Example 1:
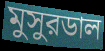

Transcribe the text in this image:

মুসুরডাল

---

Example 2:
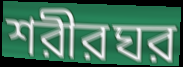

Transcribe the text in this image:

শরীরঘর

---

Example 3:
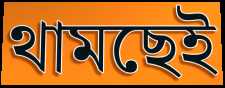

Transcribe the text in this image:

থামছেই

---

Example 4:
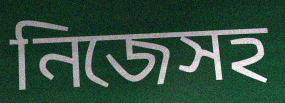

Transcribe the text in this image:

নিজেসহ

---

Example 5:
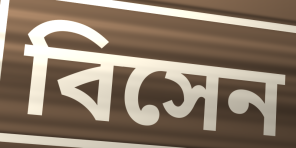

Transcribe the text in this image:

বিসেন